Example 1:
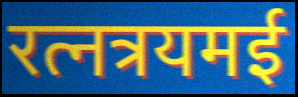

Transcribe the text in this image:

रत्नत्रयमई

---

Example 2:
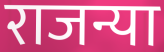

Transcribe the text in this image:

राजन्या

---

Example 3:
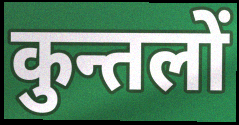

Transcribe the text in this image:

कुन्तलों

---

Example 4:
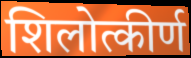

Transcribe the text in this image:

शिलोत्कीर्ण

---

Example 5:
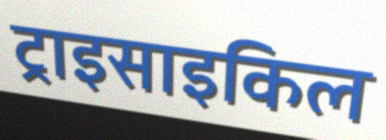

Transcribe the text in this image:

ट्राइसाइकिल